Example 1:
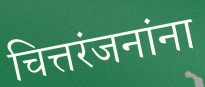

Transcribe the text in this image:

चित्तरंजनांना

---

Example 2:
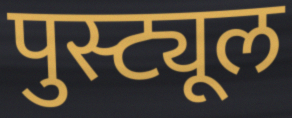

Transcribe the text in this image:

पुस्ट्यूल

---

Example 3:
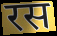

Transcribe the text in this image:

रस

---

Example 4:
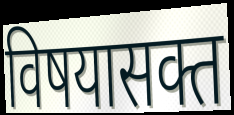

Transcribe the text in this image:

विषयासक्त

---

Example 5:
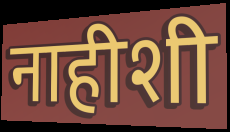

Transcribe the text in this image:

नाहीशी